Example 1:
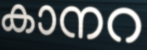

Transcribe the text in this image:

കാനറ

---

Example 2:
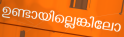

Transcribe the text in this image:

ഉണ്ടായില്ലെങ്കിലോ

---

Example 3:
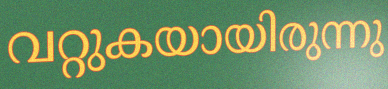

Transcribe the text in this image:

വറ്റുകയായിരുന്നു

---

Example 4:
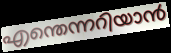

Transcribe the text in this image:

എന്തെന്നറിയാൻ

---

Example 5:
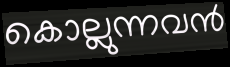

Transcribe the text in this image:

കൊല്ലുന്നവൻ